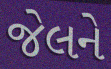
જેલને